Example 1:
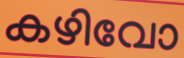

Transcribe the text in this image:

കഴിവോ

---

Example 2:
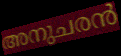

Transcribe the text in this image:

അനുചരൻ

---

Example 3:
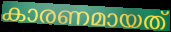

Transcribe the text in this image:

കാരണമായത്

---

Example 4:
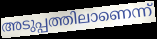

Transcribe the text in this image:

അടുപ്പത്തിലാണെന്ന്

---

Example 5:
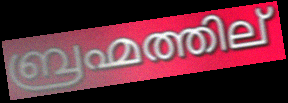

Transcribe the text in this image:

ബ്രഹ്മത്തില്